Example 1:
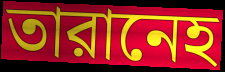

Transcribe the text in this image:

তারানেহ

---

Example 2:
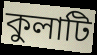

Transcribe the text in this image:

কুলাটি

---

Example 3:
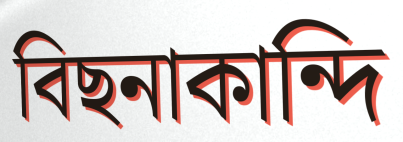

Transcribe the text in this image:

বিছনাকান্দি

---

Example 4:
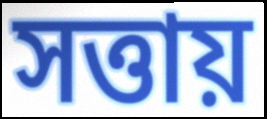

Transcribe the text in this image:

সত্তায়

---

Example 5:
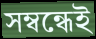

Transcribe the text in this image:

সম্বন্ধেই